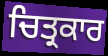
ਚਿਤ੍ਰਕਾਰ